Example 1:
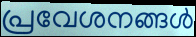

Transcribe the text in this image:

പ്രവേശനങ്ങൾ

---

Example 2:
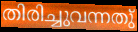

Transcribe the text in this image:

തിരിച്ചുവന്നതു്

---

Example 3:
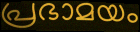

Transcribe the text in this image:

പ്രഭാമയം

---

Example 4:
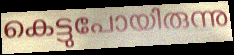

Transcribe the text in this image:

കെട്ടുപോയിരുന്നു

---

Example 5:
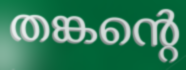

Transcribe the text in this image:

തങ്കന്റെ